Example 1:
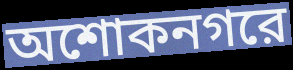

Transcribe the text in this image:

অশোকনগরে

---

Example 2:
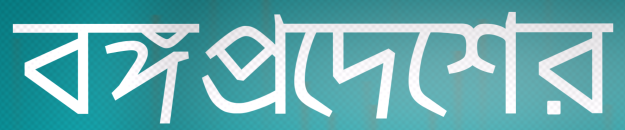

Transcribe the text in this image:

বঙ্গপ্রদেশের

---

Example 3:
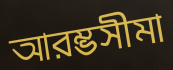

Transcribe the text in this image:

আরম্ভসীমা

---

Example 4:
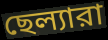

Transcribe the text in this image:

ছেল্যারা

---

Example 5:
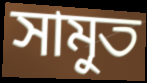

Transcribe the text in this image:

সামুত